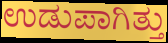
ಉಡುಪಾಗಿತ್ತು